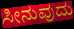
ಸೀನುವುದು